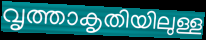
വൃത്താകൃതിയിലുള്ള